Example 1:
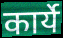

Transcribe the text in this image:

कार्ये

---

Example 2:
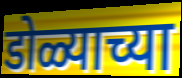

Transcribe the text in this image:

डोळ्याच्या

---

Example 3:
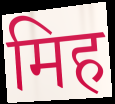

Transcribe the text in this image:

मिह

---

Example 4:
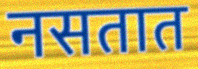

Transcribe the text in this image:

नसतात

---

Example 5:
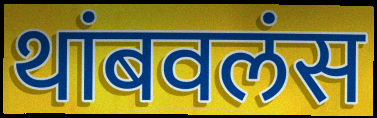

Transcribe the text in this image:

थांबवलंस